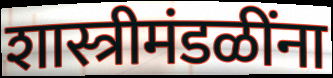
शास्त्रीमंडळींना